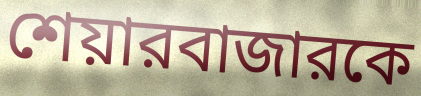
শেয়ারবাজারকে